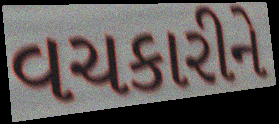
વચકારીને